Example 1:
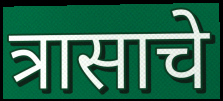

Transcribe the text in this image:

त्रासाचे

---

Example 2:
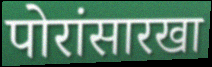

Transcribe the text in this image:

पोरांसारखा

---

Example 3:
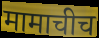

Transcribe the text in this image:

मामाचीच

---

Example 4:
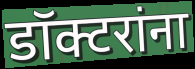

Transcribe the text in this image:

डॉक्टरांना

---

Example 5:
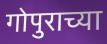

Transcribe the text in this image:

गोपुराच्या